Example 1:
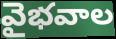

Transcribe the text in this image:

వైభవాల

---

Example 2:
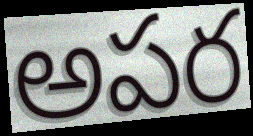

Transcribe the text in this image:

అపర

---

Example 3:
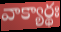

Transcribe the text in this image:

వాక్యార్థః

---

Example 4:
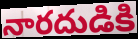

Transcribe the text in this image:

నారదుడికి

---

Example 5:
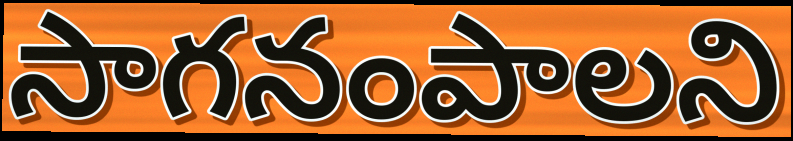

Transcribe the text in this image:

సాగనంపాలని